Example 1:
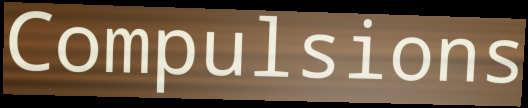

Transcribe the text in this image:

Compulsions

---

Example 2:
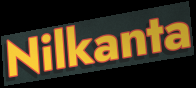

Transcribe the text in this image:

Nilkanta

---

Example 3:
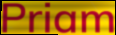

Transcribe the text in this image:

Priam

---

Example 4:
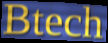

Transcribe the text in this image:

Btech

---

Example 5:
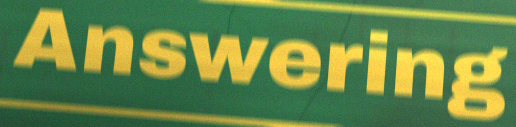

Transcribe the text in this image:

Answering